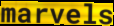
marvels